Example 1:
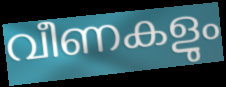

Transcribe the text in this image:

വീണകളും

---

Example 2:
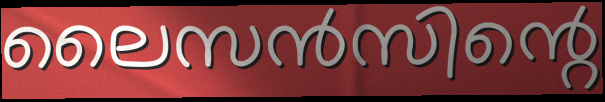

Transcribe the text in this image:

ലൈസൻസിന്റെ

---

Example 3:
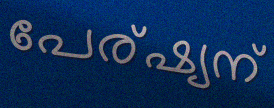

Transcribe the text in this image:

പേര്ഷ്യന്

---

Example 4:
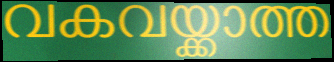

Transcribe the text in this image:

വകവയ്ക്കാത്ത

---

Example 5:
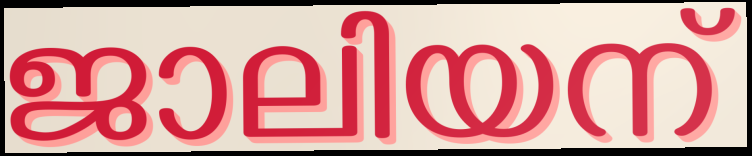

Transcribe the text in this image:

ജാലിയന്